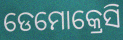
ଡେମୋକ୍ରେସି